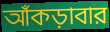
আঁকড়াবার